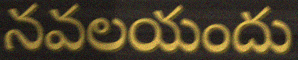
నవలయందు